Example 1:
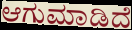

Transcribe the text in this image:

ಆಗುಮಾಡಿದೆ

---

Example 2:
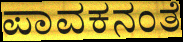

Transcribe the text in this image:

ಪಾವಕನಂತೆ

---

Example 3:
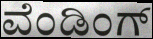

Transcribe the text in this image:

ವೆಂಡಿಂಗ್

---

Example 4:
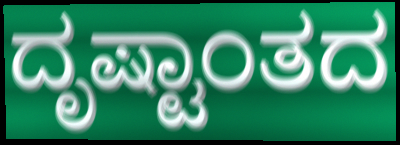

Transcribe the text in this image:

ದೃಷ್ಟಾಂತದ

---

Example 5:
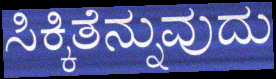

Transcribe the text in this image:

ಸಿಕ್ಕಿತೆನ್ನುವುದು